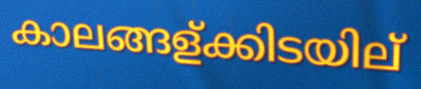
കാലങ്ങള്ക്കിടയില്